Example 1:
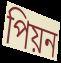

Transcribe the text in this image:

পিয়ন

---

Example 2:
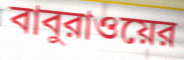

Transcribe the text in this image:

বাবুরাওয়ের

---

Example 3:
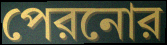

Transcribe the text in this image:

পেরনোর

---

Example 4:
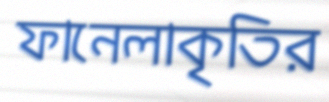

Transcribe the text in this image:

ফানেলাকৃতির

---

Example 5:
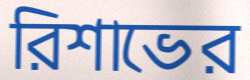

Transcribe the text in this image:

রিশাভের